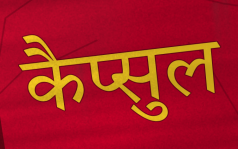
कैप्सुल